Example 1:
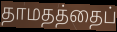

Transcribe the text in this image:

தாமதத்தைப்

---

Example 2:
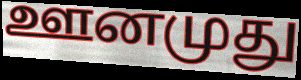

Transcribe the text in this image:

ஊனமுது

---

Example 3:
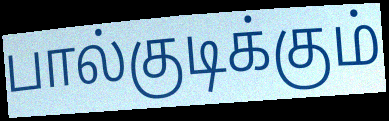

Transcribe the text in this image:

பால்குடிக்கும்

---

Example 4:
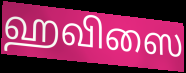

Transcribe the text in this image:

ஹவிஸை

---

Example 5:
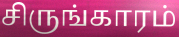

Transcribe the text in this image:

சிருங்காரம்